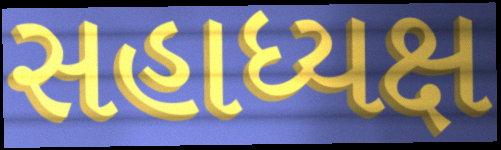
સહાધ્યક્ષ